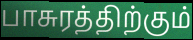
பாசுரத்திற்கும்